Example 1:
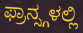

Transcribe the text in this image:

ಫ್ರಾನ್ಸ್ಗಳಲ್ಲಿ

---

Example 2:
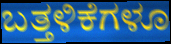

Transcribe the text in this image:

ಬತ್ತಳಿಕೆಗಳೂ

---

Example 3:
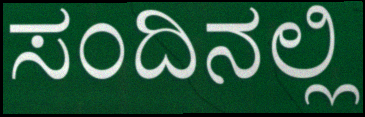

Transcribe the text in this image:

ಸಂದಿನಲ್ಲಿ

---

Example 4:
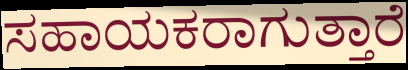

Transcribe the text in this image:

ಸಹಾಯಕರಾಗುತ್ತಾರೆ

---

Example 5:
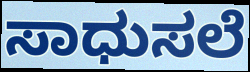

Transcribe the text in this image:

ಸಾಧುಸಲೆ